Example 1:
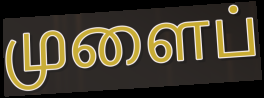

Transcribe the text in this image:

முளைப்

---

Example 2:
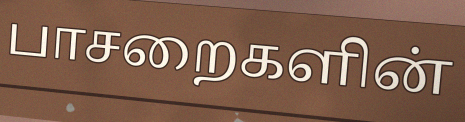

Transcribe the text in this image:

பாசறைகளின்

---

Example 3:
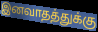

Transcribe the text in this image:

இனவாதத்துக்கு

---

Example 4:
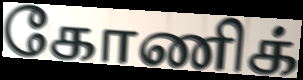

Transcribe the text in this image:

கோணிக்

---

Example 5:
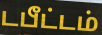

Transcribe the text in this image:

டபீட்டம்